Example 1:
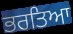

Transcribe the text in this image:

ਭਰਤਿਆ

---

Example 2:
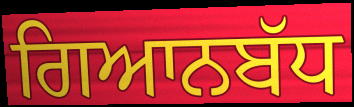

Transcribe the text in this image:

ਗਿਆਨਬੱਧ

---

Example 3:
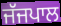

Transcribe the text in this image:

ਜੱਜਪਾਲ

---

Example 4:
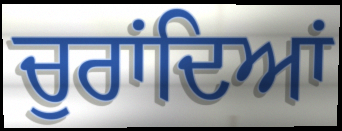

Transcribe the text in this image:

ਚੁਰਾਂਦਿਆਂ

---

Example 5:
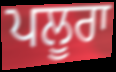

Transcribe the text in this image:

ਪਲੂਰਾ